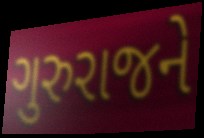
ગુરુરાજને